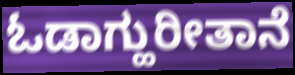
ಓಡಾಗ್ಹುರೀತಾನೆ